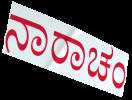
ನಾರಾಚಂ